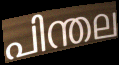
പിന്തല